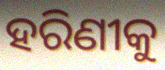
ହରିଣୀକୁ